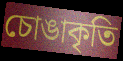
চোঙাকৃতি